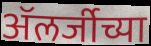
ॲलर्जीच्या